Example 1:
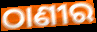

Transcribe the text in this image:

ଠାଣୀର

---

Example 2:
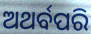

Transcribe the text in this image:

ଅଥର୍ବପରି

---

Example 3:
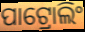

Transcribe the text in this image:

ପାଟ୍ରୋଲିଂ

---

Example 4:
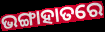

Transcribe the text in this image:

ଭଙ୍ଗାହାତରେ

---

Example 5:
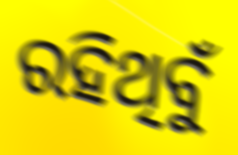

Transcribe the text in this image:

ରହିଥିବୁଁ